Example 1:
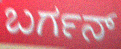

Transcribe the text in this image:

ಬರ್ಗನ್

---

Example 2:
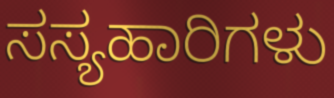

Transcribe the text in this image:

ಸಸ್ಯಹಾರಿಗಳು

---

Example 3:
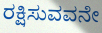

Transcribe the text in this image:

ರಕ್ಷಿಸುವವನೇ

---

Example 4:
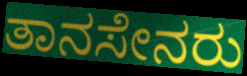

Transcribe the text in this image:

ತಾನಸೇನರು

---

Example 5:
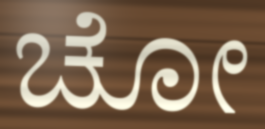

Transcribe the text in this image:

ಚೋ